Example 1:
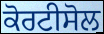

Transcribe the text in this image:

ਕੋਰਟੀਸੋਲ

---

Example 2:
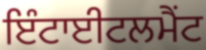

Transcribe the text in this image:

ਇੰਟਾਈਟਲਮੈਂਟ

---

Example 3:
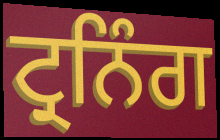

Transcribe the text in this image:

ਟ੍ਰਨਿੰਗ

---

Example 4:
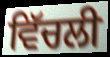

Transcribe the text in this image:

ਵਿੱਚਲੀ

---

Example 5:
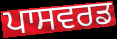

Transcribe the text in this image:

ਪਾਸਵਰਡ